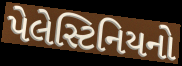
પેલેસ્ટિનિયનો